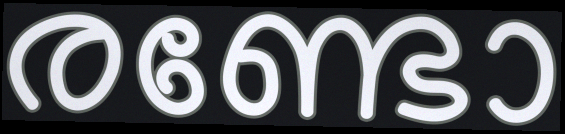
രണ്ടോ